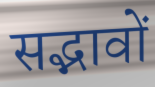
सद्भावों